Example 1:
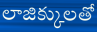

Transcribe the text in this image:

లాజిక్కులతో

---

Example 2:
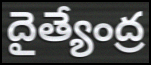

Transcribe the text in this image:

దైత్యేంద్ర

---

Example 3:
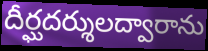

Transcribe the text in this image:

దీర్ఘదర్శులద్వారాను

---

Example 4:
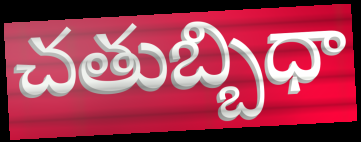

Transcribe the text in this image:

చతుబ్బిధా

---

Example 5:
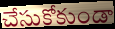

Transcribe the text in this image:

చేసుకోకుండా